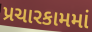
પ્રચારકામમાં